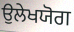
ਉਲੇਖਯੋਗ